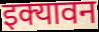
इक्‍यावन